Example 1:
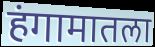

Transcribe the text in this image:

हंगामातला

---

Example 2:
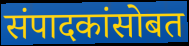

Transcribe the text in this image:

संपादकांसोबत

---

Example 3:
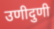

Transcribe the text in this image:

उणीदुणी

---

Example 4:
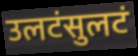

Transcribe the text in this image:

उलटंसुलटं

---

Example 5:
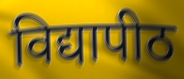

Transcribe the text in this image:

विद्यापीठ